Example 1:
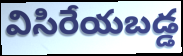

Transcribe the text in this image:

విసిరేయబడ్డ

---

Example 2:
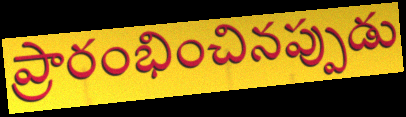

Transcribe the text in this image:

ప్రారంభించినప్పుడు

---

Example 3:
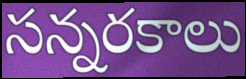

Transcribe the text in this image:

సన్నరకాలు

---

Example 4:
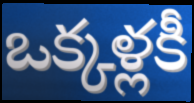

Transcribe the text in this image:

ఒక్కళ్లకీ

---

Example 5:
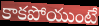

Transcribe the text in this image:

కాకపోయుంటే